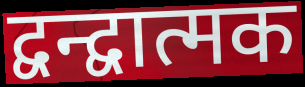
द्वन्द्वात्मक